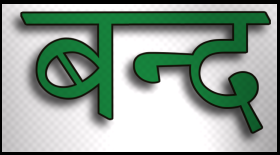
बन्द